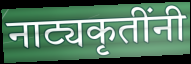
नाट्यकृतींनी